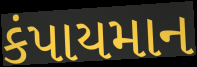
કંપાયમાન